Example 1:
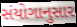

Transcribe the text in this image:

સંયોગાનુસાર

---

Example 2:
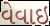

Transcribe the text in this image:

વેવાઇ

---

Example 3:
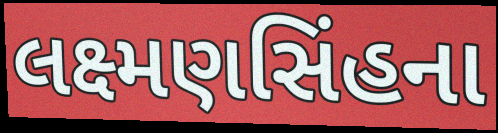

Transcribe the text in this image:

લક્ષ્મણસિંહના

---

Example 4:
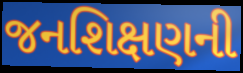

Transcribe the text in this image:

જનશિક્ષણની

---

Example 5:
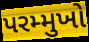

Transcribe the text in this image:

પરમ્મુખો